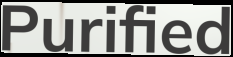
Purified